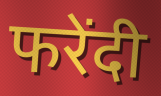
फरेंदी